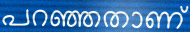
പറഞ്ഞതാണ്